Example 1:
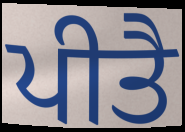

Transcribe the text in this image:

ਪੀਤੈ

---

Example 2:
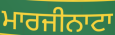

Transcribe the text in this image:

ਮਾਰਜੀਨਾਟਾ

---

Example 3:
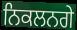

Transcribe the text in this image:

ਨਿਕਲਨਗੇ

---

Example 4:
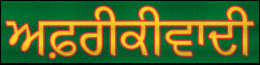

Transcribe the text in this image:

ਅਫ਼ਰੀਕੀਵਾਦੀ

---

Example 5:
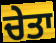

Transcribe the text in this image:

ਚੇਤਾ